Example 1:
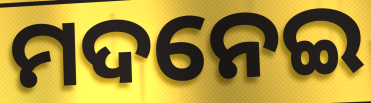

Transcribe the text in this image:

ମଦନେଇ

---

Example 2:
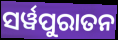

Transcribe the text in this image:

ସର୍ୱପୁରାତନ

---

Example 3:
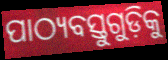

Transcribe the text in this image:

ପାଠ୍ୟବସ୍ତୁଗୁଡ଼ିକୁ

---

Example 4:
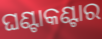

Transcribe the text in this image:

ଘଣ୍ଟାକଣ୍ଟାର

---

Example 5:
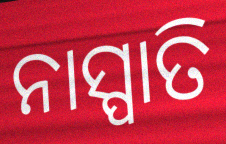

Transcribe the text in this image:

ନାସ୍ପାତି